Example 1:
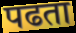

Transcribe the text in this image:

पढता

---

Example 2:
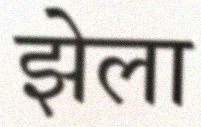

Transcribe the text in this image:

झेला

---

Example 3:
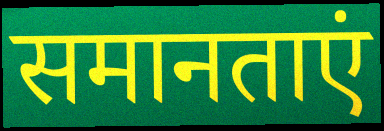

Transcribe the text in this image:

समानताएं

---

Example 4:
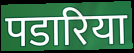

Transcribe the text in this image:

पडारिया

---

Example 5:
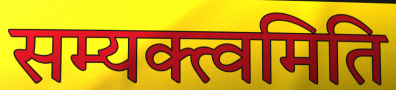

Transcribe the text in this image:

सम्यक्त्वमिति